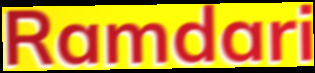
Ramdari